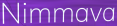
Nimmava